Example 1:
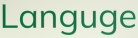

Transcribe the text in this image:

Languge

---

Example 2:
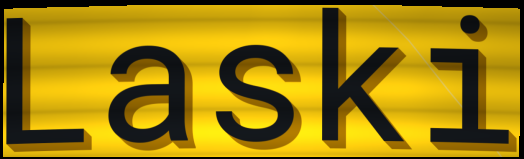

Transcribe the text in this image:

Laski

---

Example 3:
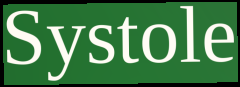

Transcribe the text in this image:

Systole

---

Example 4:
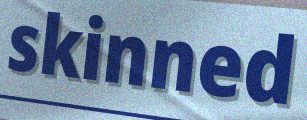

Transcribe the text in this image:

skinned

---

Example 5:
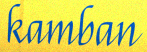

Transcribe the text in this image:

kamban